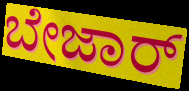
ಬೇಜಾರ್